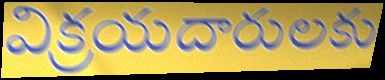
విక్రయదారులకు